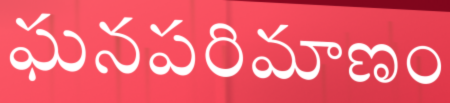
ఘనపరిమాణం